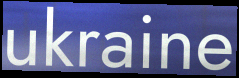
ukraine